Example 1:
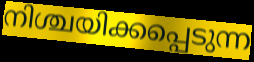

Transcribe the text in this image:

നിശ്ചയിക്കപ്പെടുന്ന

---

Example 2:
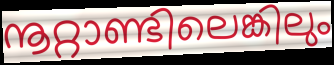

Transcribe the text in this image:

നൂറ്റാണ്ടിലെങ്കിലും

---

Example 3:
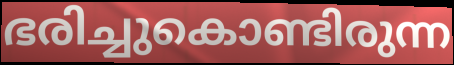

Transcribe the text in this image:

ഭരിച്ചുകൊണ്ടിരുന്ന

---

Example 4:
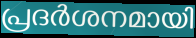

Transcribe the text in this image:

പ്രദർശനമായി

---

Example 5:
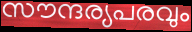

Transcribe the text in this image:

സൗന്ദര്യപരവും